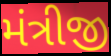
મંત્રીજી